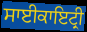
ਸਾਈਕਾਇਟ੍ਰੀ